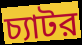
চ্যাটর